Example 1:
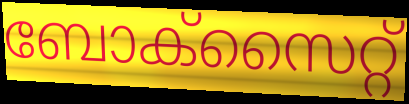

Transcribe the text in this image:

ബോക്സൈറ്റ്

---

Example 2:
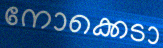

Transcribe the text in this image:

നോക്കെടാ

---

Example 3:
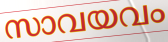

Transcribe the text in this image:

സാവയവം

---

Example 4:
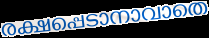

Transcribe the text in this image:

രക്ഷപ്പെടാനാവാതെ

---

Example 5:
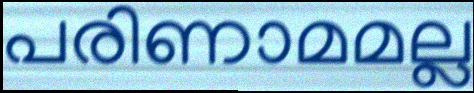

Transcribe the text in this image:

പരിണാമമല്ല